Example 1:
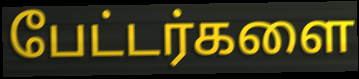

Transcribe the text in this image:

பேட்டர்களை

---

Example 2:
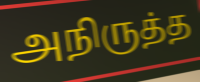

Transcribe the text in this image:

அநிருத்த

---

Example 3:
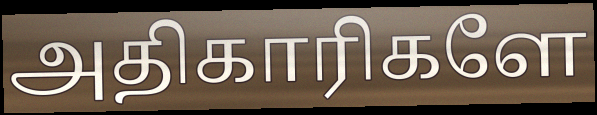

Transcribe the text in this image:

அதிகாரிகளே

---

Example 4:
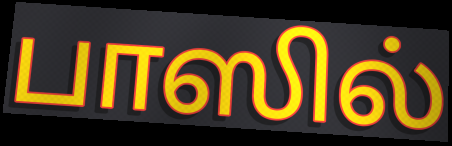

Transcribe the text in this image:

பாஸில்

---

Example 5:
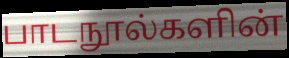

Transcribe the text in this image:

பாடநூல்களின்